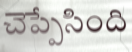
చెప్పేసింది